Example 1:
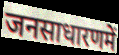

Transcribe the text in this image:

जनसाधारणमें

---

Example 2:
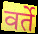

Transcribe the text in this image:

वर्ते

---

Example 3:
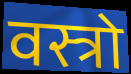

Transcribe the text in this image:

वस्त्रो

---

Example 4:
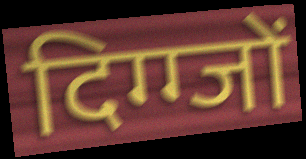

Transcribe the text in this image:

दिग्ग्जों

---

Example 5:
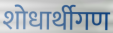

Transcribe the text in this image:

शोधार्थीगण